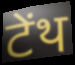
टेंथ